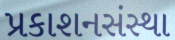
પ્રકાશનસંસ્થા